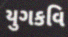
યુગકવિ